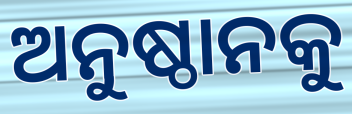
ଅନୁଷ୍ଠାନକୁ